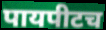
पायपीटच